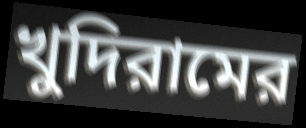
খুদিরামের